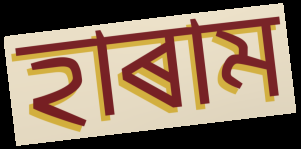
হাৰাম